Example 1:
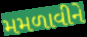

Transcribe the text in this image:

મમળાવીને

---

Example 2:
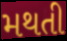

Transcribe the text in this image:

મથતી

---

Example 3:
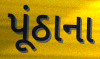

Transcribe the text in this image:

પૂંઠાના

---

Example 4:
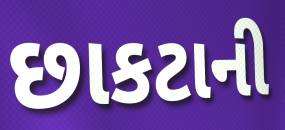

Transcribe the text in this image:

છાકટાની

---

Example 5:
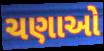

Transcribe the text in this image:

ચણાઓ